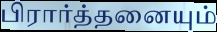
பிரார்த்தனையும்